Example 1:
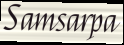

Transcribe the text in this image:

Samsarpa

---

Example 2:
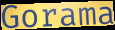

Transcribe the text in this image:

Gorama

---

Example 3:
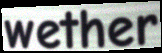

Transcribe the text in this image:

wether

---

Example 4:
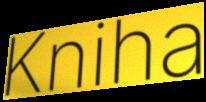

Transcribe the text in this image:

Kniha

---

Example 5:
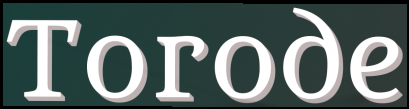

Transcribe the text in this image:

Torode